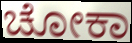
ಚೋಕಾ